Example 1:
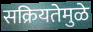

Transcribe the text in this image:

सक्रियतेमुळे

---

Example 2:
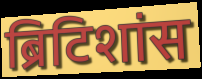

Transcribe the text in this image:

ब्रिटिशांस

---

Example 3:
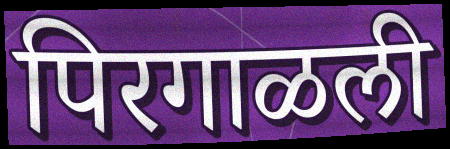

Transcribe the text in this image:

पिरगाळली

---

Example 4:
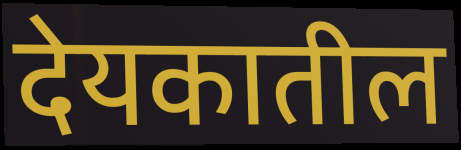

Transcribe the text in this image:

देयकातील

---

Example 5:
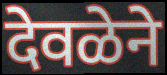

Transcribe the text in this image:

देवळेने